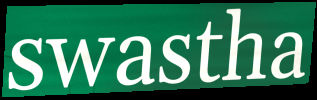
swastha